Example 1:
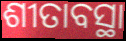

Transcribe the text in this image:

ଶୀତାବସ୍ଥା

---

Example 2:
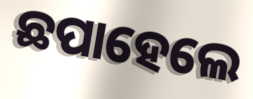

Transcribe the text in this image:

ଛପାହେଲେ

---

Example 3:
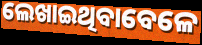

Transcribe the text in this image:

ଲେଖାଇଥିବାବେଳେ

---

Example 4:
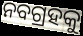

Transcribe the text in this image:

ନବଗ୍ରହକୁ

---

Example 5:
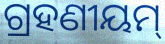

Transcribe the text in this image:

ଗ୍ରହଣୀୟମ୍